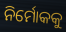
ନିର୍ମୋକକୁ